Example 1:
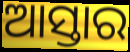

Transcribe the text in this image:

ଆସ୍ତାର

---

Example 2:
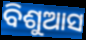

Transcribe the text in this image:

ବିଶୁଆସ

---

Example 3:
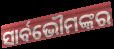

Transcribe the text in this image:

ସାର୍ବଭୌମଙ୍କର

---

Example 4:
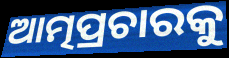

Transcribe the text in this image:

ଆତ୍ମପ୍ରଚାରକୁ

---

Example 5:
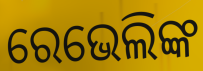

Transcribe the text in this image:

ରେଭେଲିଙ୍କ